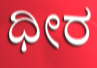
ಧೀರ